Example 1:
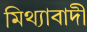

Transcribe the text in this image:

মিথ্যাবাদী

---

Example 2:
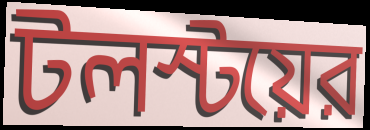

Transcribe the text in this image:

টলস্টয়ের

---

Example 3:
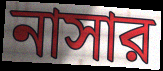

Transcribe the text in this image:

নাসার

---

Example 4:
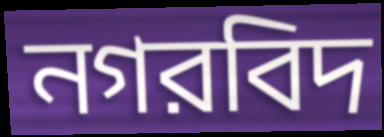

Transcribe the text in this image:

নগরবিদ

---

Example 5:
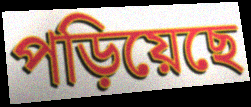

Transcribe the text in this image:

পড়িয়েছে